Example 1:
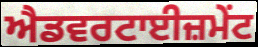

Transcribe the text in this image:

ਐਡਵਰਟਾਈਜ਼ਮੇਂਟ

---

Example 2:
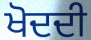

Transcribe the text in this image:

ਖੋਦਦੀ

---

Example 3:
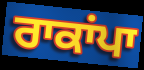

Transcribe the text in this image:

ਰਾਕਾਂਪਾ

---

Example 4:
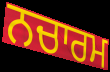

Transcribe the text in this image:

ਨਚਾਰਮ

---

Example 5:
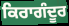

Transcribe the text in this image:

ਕਿਰਾਗੰਦੂਰ